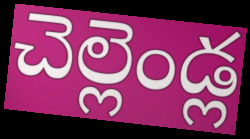
చెల్లెండ్ల